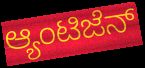
ಆ್ಯಂಟಿಜೆನ್